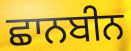
ਛਾਨਬੀਨ